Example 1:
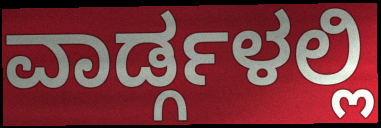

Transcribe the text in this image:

ವಾರ್ಡ್ಗಳಲ್ಲಿ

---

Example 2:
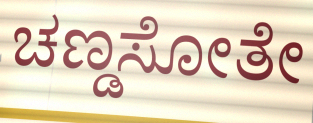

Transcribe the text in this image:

ಚಣ್ಡಸೋತೇ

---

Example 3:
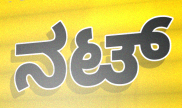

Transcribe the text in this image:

ನಟ್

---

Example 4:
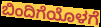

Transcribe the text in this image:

ಬಿಂದಿಗೆಯೊಳಗೆ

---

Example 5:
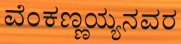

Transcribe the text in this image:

ವೆಂಕಣ್ಣಯ್ಯನವರ